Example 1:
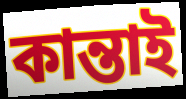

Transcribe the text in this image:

কান্তাই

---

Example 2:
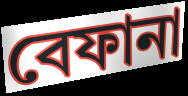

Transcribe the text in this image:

বেফানা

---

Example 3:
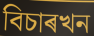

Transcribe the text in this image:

বিচাৰখন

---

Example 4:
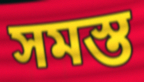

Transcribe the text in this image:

সমস্ত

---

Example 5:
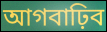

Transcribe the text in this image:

আগবাঢ়িব